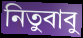
নিতুবাবু